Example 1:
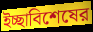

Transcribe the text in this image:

ইচ্ছাবিশেষের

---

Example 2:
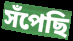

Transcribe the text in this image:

সঁপেছি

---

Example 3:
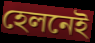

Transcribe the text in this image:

হেলনেই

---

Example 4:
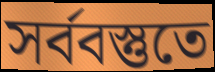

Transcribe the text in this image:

সর্ববস্তুতে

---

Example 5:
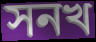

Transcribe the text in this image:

সনখ